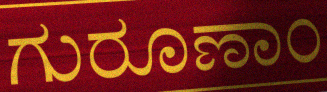
ಗುರೂಣಾಂ